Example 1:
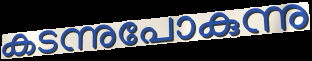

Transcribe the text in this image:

കടന്നുപോകുന്നു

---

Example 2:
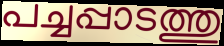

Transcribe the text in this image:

പച്ചപ്പാടത്തു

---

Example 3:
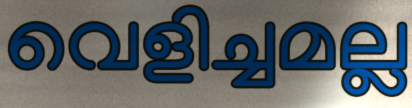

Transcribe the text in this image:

വെളിച്ചമല്ല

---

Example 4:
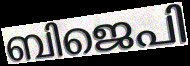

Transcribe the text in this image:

ബിജെപി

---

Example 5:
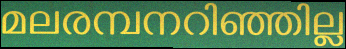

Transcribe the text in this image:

മലരമ്പനറിഞ്ഞില്ല